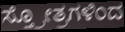
ಸ್ತ್ರೋತ್ರಗಳಿಂದ